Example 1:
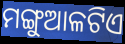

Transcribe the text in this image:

ମଙ୍ଗୁଆଳଟିଏ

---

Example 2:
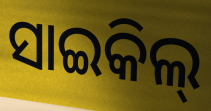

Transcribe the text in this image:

ସାଇକିଲ୍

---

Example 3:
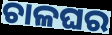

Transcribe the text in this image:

ଚାଳଘର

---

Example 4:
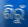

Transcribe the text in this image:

ଶିରୁଁ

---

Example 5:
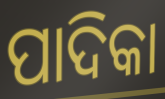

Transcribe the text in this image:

ପାଦିକା